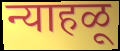
न्याहळू